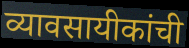
व्यावसायीकांची